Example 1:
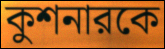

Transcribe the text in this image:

কুশনারকে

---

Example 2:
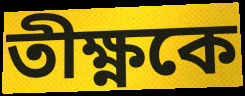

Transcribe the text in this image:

তীক্ষ্ণকে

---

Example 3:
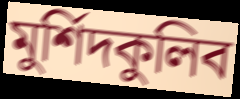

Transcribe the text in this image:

মুর্শিদকুলিব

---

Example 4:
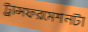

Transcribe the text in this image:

ট্রান্সফরমেশনটা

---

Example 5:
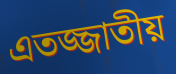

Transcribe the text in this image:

এতজ্জাতীয়